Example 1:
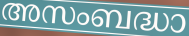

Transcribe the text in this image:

അസംബദ്ധാ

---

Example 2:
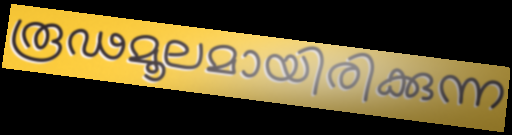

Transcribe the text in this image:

രൂഢമൂലമായിരിക്കുന്ന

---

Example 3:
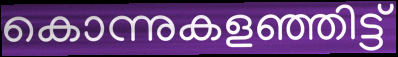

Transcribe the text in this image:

കൊന്നുകളഞ്ഞിട്ട്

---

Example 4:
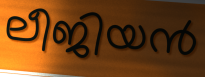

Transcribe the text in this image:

ലീജിയൻ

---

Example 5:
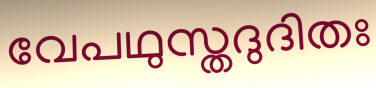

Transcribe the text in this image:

വേപഥുസ്തദുദിതഃ